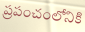
ప్రపంచంలోనికి